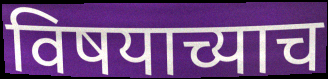
विषयाच्याच